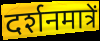
दर्शनमात्रें